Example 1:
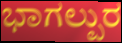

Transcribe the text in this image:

ಭಾಗಲ್ಪುರ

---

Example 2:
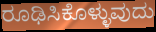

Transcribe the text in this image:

ರೂಢಿಸಿಕೊಳ್ಳುವುದು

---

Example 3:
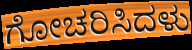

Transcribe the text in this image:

ಗೋಚರಿಸಿದಳು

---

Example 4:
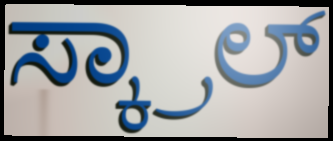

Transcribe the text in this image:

ಸ್ಕ್ರಾಲ್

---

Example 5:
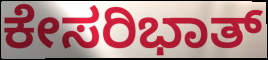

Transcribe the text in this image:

ಕೇಸರಿಭಾತ್